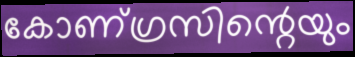
കോണ്ഗ്രസിന്റെയും